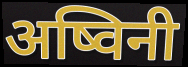
अष्विनी